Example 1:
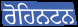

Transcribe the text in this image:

ਰੋਹਿਨਟਨ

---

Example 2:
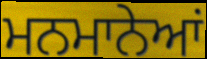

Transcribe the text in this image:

ਮਨਮਾਨੇਆਂ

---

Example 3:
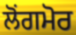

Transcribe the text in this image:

ਲੋਂਗਮੋਰ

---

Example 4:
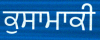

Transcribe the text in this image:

ਕੁਸਾਮਾਕੀ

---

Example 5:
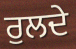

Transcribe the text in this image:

ਰੁਲਦੇ